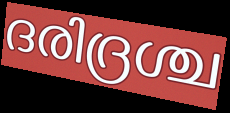
ദരിദ്രശ്ച